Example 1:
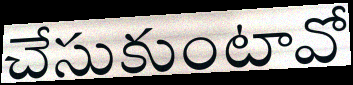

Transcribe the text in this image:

చేసుకుంటావో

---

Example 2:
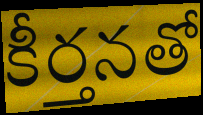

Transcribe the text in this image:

కీర్తనతో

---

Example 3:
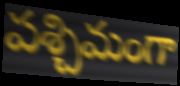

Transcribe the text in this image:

పశ్చిమంగా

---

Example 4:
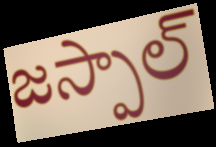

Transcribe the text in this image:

జస్పాల్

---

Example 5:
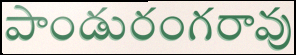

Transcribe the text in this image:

పాండురంగరావు